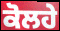
ਕੋਲਹੇ